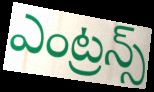
ఎంట్రన్స్